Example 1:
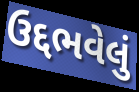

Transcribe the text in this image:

ઉદ્દભવેલું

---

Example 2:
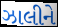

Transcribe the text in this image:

ઝાલીને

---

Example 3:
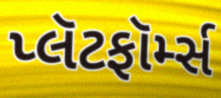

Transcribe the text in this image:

પ્લૅટફૉર્મ્સ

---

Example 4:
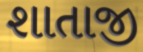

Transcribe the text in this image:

શાતાજી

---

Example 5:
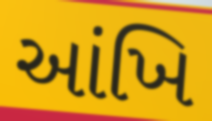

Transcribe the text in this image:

આંખિ